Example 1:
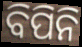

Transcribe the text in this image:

ବିପିନି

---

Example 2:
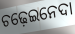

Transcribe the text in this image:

ଚଢ଼େଇନେଦା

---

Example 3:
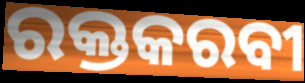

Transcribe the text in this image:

ରକ୍ତକରବୀ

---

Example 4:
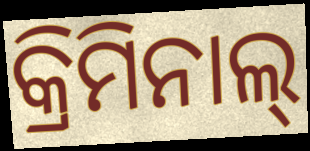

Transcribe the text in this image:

କ୍ରିମିନାଲ୍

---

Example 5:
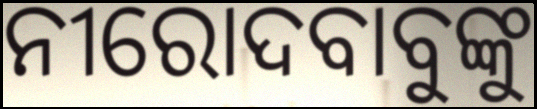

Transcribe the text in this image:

ନୀରୋଦବାବୁଙ୍କୁ